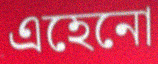
এহেনো